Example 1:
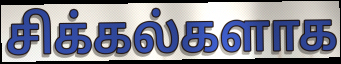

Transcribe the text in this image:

சிக்கல்களாக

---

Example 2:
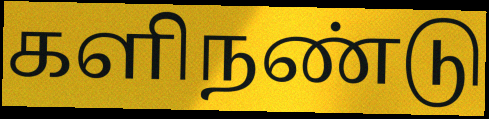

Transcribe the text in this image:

களிநண்டு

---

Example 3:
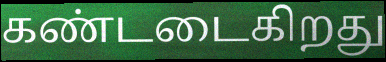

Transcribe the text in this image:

கண்டடைகிறது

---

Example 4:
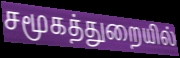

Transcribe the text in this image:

சமூகத்துறையில்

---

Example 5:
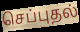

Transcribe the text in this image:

செப்புதல்